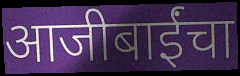
आजीबाईंचा